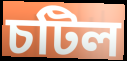
চটিল